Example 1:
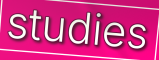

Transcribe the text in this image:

studies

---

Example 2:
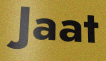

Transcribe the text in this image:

Jaat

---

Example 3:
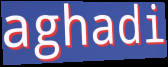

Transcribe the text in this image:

aghadi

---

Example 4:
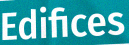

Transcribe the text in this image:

Edifices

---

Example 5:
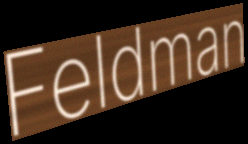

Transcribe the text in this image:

Feldman